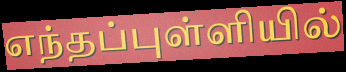
எந்தப்புள்ளியில்